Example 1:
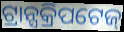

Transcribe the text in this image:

ଟ୍ରାନ୍ସକ୍ରିପଟେଜ୍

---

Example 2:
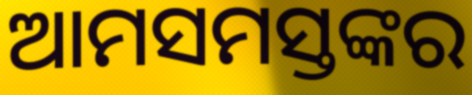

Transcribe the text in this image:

ଆମସମସ୍ତଙ୍କର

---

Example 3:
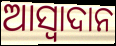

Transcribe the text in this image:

ଆସ୍ୱାଦାନ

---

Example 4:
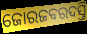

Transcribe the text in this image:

ଜୋରଜବରଦସ୍ତି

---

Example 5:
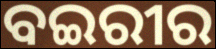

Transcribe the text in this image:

ବଇରୀର